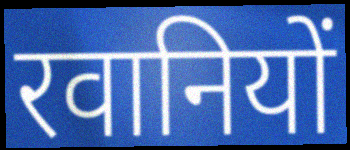
रवानियों